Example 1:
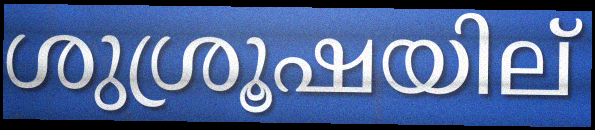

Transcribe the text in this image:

ശുശ്രൂഷയില്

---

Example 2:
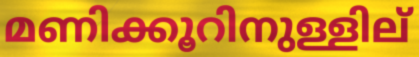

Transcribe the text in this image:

മണിക്കൂറിനുള്ളില്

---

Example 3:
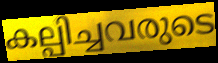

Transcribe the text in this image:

കല്പിച്ചവരുടെ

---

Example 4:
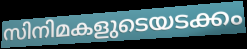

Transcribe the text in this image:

സിനിമകളുടെയടക്കം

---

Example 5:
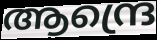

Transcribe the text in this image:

ആന്ദ്രെ